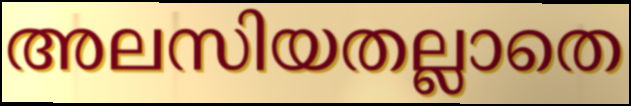
അലസിയതല്ലാതെ